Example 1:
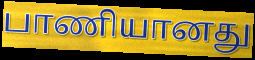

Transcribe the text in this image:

பாணியானது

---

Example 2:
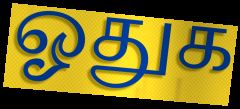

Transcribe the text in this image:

ஓதுக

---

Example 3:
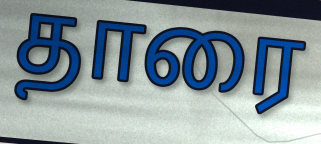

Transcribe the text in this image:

தாரை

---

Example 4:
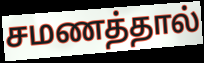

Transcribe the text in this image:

சமணத்தால்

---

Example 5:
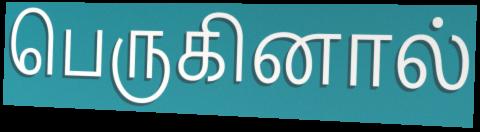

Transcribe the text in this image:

பெருகினால்